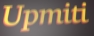
Upmiti